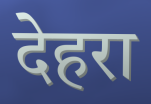
देहरा